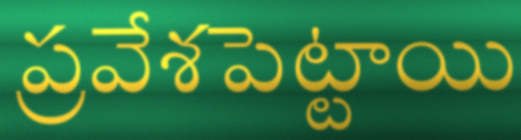
ప్రవేశపెట్టాయి